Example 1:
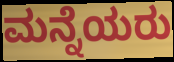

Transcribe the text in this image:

ಮನ್ನೆಯರು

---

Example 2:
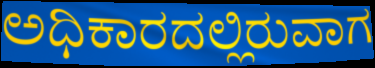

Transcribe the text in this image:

ಅಧಿಕಾರದಲ್ಲಿರುವಾಗ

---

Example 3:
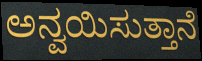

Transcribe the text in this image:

ಅನ್ವಯಿಸುತ್ತಾನೆ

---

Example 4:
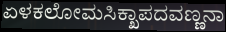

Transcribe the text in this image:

ಏಳಕಲೋಮಸಿಕ್ಖಾಪದವಣ್ಣನಾ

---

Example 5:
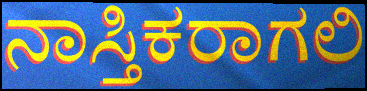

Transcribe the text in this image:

ನಾಸ್ತಿಕರಾಗಲಿ